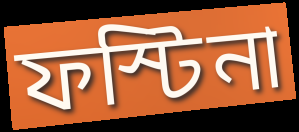
ফস্টিনা